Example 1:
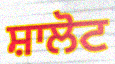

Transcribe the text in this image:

ਸ਼ਾਲੋਟ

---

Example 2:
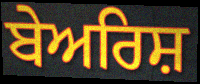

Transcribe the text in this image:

ਬੇਅਰਿਸ਼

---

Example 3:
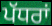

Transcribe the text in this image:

ਪੱਧਰਾਂ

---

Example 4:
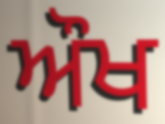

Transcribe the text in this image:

ਔਖ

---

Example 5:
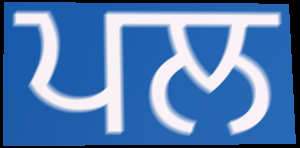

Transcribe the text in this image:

ਪਲ